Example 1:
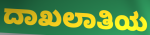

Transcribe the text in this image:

ದಾಖಲಾತಿಯ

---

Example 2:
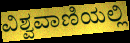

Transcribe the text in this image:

ವಿಶ್ವವಾಣಿಯಲ್ಲಿ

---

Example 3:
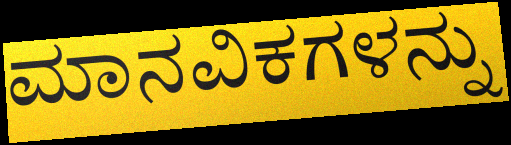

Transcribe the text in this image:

ಮಾನವಿಕಗಳನ್ನು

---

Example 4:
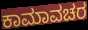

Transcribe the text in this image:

ಕಾಮಾವಚರ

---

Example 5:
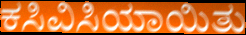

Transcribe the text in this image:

ಕಸಿವಿಸಿಯಾಯಿತು